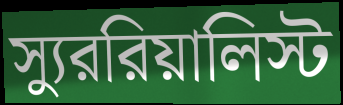
স্যুররিয়ালিস্ট